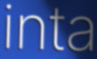
inta